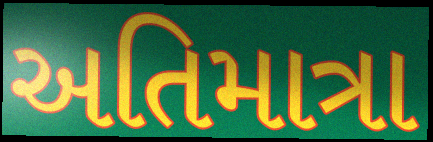
અતિમાત્રા